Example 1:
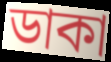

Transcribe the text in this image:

ডাকা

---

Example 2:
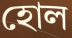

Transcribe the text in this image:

হোল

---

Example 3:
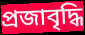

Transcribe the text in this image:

প্রজাবৃদ্ধি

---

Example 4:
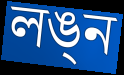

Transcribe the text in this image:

লঙ্ন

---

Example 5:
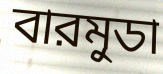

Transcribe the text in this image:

বারমুডা